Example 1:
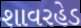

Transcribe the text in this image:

શાવરહેડ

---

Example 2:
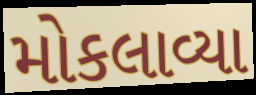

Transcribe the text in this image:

મોકલાવ્યા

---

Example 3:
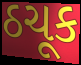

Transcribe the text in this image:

ઠચૂક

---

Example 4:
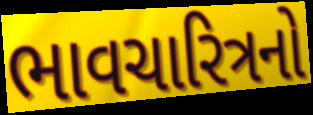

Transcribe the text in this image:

ભાવચારિત્રનો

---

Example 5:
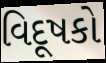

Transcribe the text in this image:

વિદૂષકો